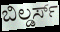
ಬಿಲ್ಡರ್ಸ್